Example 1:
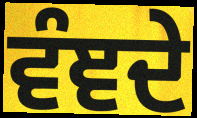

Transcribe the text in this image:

ਵੰਞਦੇ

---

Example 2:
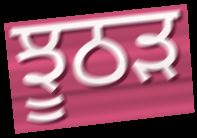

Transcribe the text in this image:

ਝੂਠੜ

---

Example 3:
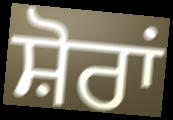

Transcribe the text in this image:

ਸ਼ੋਰਾਂ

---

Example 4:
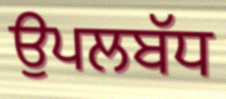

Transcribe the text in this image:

ਉਪਲਬੱਧ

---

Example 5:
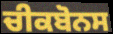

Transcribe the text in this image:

ਚੀਕਬੋਨਸ